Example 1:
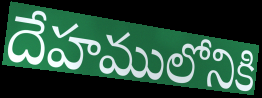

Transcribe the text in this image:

దేహములోనికి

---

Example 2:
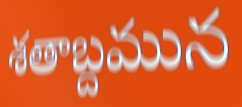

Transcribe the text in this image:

శతాబ్దమున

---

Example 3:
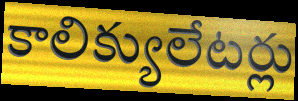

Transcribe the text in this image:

కాలిక్యులేటర్లు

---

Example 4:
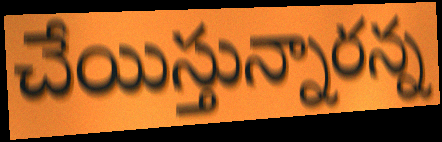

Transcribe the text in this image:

చేయిస్తున్నారన్న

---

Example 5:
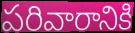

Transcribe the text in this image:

పరివారానికి